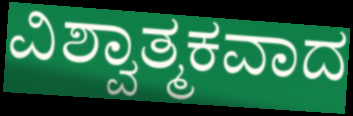
ವಿಶ್ವಾತ್ಮಕವಾದ